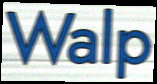
Walp